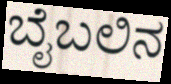
ಬೈಬಲಿನ